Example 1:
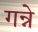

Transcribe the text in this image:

गन्ने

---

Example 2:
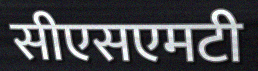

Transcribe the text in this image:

सीएसएमटी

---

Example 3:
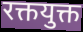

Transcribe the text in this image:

रक्तयुक्त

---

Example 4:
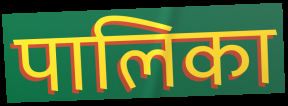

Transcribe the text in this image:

पालिका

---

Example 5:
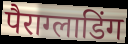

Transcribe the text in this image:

पैराग्लाडिंग